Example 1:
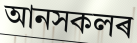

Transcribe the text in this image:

আনসকলৰ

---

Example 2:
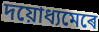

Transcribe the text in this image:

দয়োধ্যমেৰে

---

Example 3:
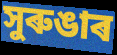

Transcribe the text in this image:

সুৰুঙাৰ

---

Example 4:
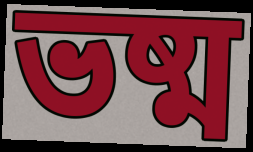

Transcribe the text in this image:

ভষ্ম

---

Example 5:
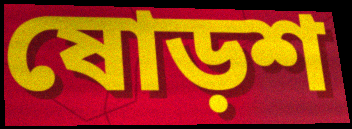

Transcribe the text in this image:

ষোড়শ